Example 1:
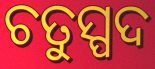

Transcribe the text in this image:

ଚତୁସ୍ପଦ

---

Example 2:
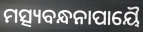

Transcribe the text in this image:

ମତ୍ସ୍ୟବନ୍ଧନାପାୟୈ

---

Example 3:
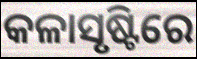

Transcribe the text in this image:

କଳାସୃଷ୍ଟିରେ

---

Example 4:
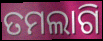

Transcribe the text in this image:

ତମଲାଗି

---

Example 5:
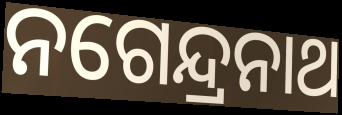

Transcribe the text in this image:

ନଗେନ୍ଦ୍ରନାଥ